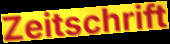
Zeitschrift